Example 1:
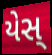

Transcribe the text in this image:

યેસ્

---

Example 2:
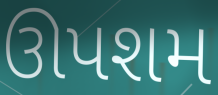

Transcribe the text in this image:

ઊપશમ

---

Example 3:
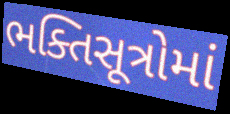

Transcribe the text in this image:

ભક્તિસૂત્રોમાં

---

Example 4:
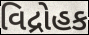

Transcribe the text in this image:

વિદ્રોહક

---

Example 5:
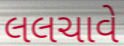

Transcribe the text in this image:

લલચાવે